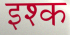
इश्क